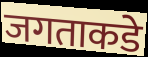
जगताकडे